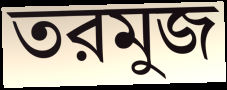
তরমুজ